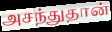
அசந்துதான்